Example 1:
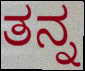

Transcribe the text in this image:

ತನ್ನ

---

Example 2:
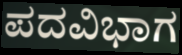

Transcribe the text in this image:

ಪದವಿಭಾಗ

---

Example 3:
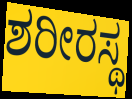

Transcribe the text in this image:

ಶರೀರಸ್ಥ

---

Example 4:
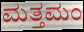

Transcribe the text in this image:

ಮತ್ತಮಂ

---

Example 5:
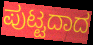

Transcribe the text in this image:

ಪುಟ್ಟದಾದ